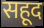
सहूद